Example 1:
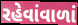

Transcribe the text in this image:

રહેવાંવાળાં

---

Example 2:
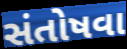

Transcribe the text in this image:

સંતોષવા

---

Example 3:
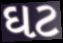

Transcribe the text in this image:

ઘટ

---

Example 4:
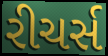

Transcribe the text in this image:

રીચર્સ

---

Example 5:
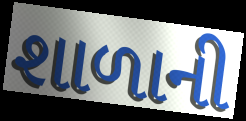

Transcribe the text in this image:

શાળાની